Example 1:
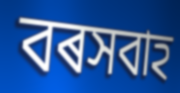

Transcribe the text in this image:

বৰসবাহ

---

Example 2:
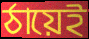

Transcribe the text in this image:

ঠায়েই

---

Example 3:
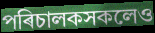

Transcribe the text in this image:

পৰিচালকসকলেও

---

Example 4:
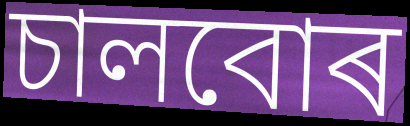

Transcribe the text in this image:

চালবোৰ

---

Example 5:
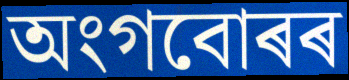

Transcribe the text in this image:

অংগবোৰৰ